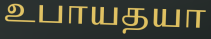
உபாயதயா